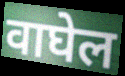
वाघेल